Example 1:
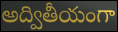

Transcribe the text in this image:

అద్వితీయంగా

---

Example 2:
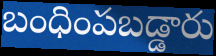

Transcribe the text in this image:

బంధింపబడ్డారు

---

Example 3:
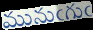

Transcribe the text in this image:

మునుఁగుఁ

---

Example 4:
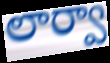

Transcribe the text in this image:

లార్వా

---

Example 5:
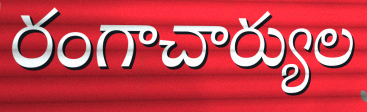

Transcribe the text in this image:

రంగాచార్యుల